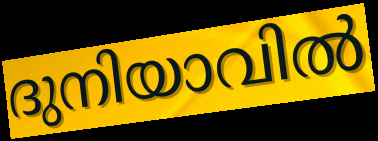
ദുനിയാവിൽ